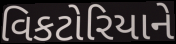
વિકટોરિયાને